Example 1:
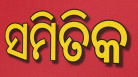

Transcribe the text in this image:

ସମିତିକ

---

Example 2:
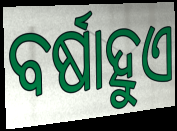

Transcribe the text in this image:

ବର୍ଷାହୁଏ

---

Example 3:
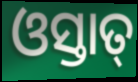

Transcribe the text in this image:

ଓସ୍ତାତ୍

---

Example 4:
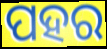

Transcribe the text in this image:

ପହର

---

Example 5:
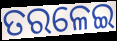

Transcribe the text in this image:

ତରଳେଇ